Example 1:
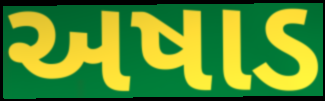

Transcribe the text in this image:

અષાડ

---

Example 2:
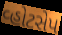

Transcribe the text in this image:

વ્હોટસેપ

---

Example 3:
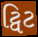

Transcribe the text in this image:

ટ્વિટ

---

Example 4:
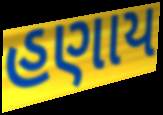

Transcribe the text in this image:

હણાય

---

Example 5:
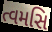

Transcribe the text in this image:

ત્વમસિ